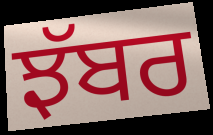
ਝੱਬਰ